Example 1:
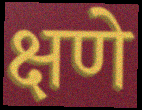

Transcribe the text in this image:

क्षणे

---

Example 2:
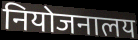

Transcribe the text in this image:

नियोजनालय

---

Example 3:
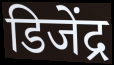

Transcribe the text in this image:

डिजेंद्र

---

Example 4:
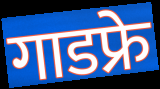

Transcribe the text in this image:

गाडफ्रे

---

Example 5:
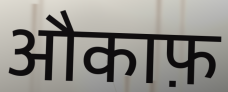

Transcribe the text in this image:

औकाफ़